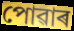
পোৱাৰ